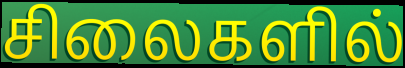
சிலைகளில்